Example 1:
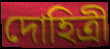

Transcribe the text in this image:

দোহিত্রী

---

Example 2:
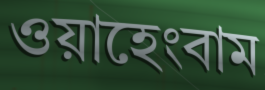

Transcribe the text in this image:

ওয়াহেংবাম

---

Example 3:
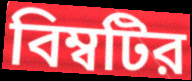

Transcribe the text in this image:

বিম্বটির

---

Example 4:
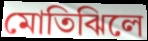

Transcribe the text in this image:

মোতিঝিলে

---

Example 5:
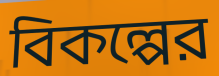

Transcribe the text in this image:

বিকল্পের